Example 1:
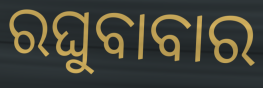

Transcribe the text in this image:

ରଘୁବାବାର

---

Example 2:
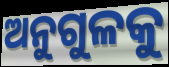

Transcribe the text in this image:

ଅନୁଗୁଳକୁ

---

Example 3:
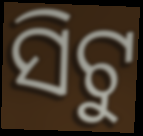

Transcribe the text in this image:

ସିଟୁ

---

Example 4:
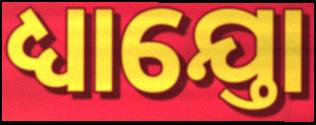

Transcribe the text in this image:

ଧ୍ୟାଯ୍ତୋ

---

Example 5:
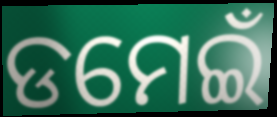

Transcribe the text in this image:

ଡମେଇଁ